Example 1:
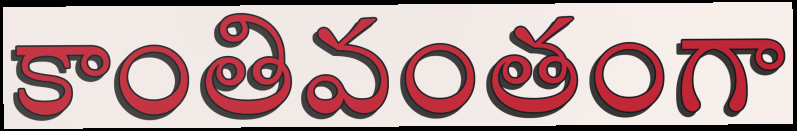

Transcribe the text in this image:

కాంతివంతంగా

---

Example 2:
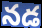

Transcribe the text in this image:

నడ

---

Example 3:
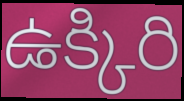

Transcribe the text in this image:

ఉక్కిరి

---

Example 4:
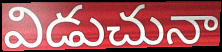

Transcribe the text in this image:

విడుచునా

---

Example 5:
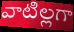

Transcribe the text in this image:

వాటిల్లగా